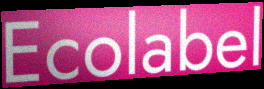
Ecolabel